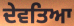
ਦੇਵਤਿਆ